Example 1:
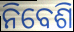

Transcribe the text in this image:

ନିବେଶି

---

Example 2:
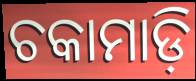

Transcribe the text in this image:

ଚକାମାଡ଼ି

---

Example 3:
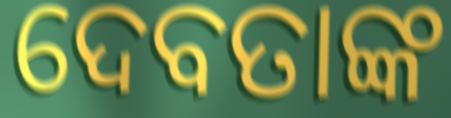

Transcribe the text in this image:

ଦେବତାଙ୍କ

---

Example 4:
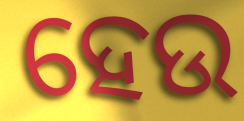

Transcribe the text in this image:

ହେଉ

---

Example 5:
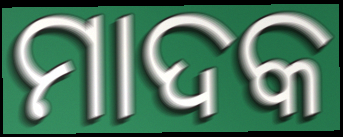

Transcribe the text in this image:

ମାଦକ